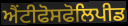
ਐਂਟੀਫੋਸਫੋਲਿਪੀਡ